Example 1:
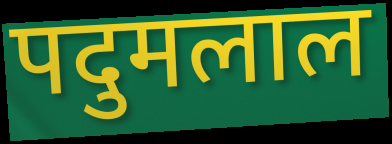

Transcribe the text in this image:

पदुमलाल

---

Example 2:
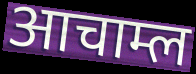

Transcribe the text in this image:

आचाम्ल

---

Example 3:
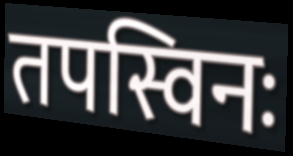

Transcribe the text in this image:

तपस्विनः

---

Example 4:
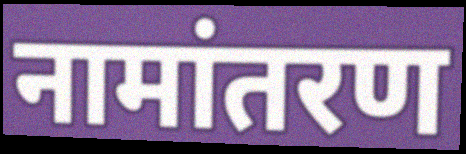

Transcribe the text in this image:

नामांतरण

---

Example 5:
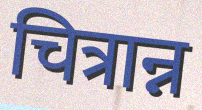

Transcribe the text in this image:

चित्रान्न